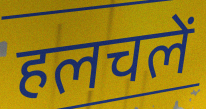
हलचलें